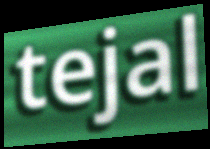
tejal